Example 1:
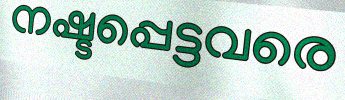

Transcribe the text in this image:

നഷ്ടപ്പെട്ടവരെ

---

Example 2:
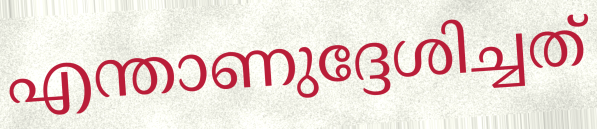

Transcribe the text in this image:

എന്താണുദ്ദേശിച്ചത്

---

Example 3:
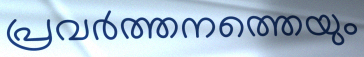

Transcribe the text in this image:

പ്രവർത്തനത്തെയും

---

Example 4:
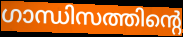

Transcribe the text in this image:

ഗാന്ധിസത്തിന്റെ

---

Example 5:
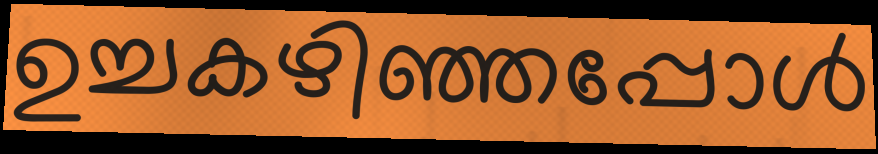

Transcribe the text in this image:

ഉച്ചകഴിഞ്ഞപ്പോൾ